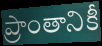
ప్రాంతానికీ